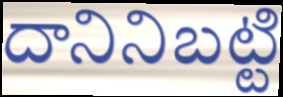
దానినిబట్టి